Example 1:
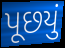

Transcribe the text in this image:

પૂછયું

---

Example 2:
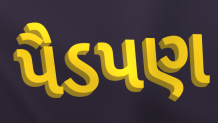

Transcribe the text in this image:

પૈડપણ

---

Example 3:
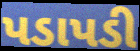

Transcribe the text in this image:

પડાપડી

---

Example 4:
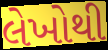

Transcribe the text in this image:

લેખોથી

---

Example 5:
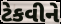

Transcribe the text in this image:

ટેકવીને